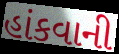
હાંકવાની